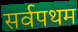
सर्वपथम